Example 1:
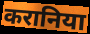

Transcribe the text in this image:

करानिया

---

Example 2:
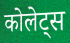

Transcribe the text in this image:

कोलेट्स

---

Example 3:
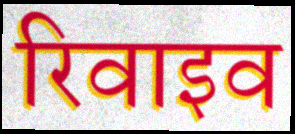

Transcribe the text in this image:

रिवाइव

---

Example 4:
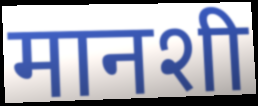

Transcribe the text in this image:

मानशी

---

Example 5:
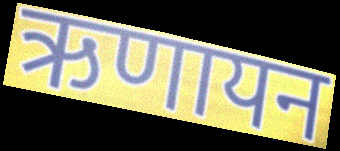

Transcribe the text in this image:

ऋणायन